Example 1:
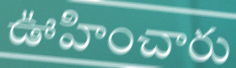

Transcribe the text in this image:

ఊహించారు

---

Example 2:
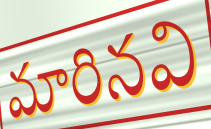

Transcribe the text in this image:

మారినవి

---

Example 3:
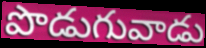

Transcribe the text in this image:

పొడుగువాడు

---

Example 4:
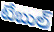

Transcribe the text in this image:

టేబుల్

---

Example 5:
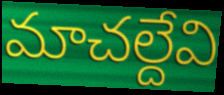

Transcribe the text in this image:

మాచల్దేవి